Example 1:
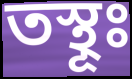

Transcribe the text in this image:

তস্থূঃ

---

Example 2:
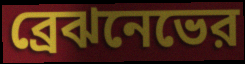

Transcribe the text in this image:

ব্রেঝনেভের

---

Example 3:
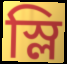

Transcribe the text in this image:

স্লি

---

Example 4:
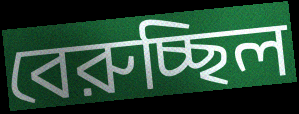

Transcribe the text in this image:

বেরুচ্ছিল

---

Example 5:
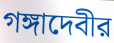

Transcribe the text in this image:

গঙ্গাদেবীর